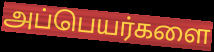
அப்பெயர்களை